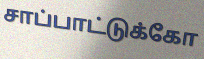
சாப்பாட்டுக்கோ